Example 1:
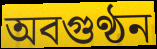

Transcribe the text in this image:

অবগুণ্ঠন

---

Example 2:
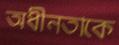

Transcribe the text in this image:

অধীনতাকে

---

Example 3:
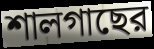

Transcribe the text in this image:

শালগাছের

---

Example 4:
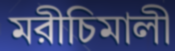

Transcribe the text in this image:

মরীচিমালী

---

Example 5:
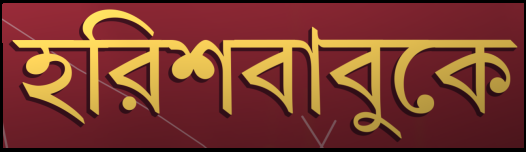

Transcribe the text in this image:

হরিশবাবুকে